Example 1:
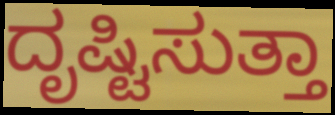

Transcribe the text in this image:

ದೃಷ್ಟಿಸುತ್ತಾ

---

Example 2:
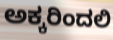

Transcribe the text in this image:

ಅಕ್ಕರಿಂದಲಿ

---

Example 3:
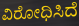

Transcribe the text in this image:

ವಿರೋಧಿಸಿದೆ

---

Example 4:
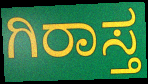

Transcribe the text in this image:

ಗಿರಾಸ್ತ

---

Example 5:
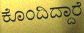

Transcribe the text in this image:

ಕೊಂದಿದ್ದಾರೆ